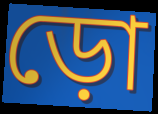
ড়ো